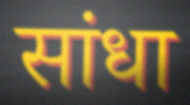
सांधा